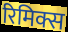
रिमिक्स